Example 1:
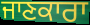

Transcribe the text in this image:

ਜਾਣਕਾਰਾ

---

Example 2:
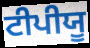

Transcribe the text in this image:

ਟੀਪੀਯੂ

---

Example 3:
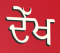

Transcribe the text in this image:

ਦੇੱਖ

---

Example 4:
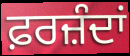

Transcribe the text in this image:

ਫ਼ਰਜ਼ੰਦਾਂ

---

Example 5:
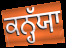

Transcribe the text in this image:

ਕਨ੍ਹੱਯਾ